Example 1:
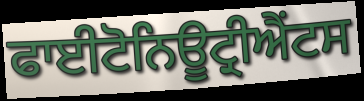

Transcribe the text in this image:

ਫਾਈਟੋਨਿਊਟ੍ਰੀਐਂਟਸ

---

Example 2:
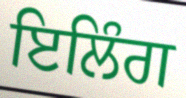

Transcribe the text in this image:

ਇਲਿੰਗ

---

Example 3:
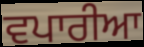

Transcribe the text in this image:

ਵਪਾਰੀਆ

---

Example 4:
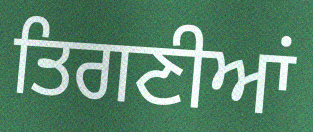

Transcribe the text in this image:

ਤਿਗਣੀਆਂ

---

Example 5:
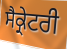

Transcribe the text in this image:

ਸੈਕ੍ਰੇਟਰੀ